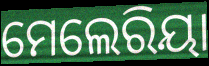
ମେଲେରିୟା